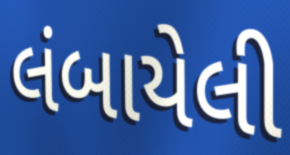
લંબાયેલી